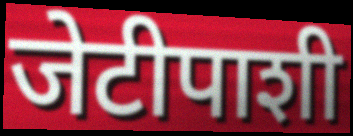
जेटीपाशी